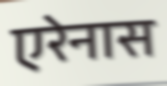
एरेनास